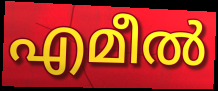
എമീൽ